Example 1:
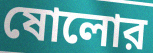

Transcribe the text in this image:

ষোলোর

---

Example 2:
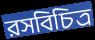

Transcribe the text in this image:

রসবিচিত্র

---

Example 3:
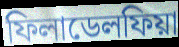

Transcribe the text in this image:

ফিলাডেলফিয়া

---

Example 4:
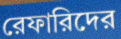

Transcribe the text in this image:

রেফারিদের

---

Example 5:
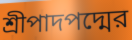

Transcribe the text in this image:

শ্রীপাদপদ্মের